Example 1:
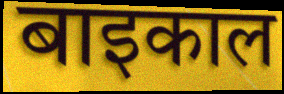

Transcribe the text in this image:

बाइकाल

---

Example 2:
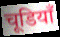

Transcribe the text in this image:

चूडियाँ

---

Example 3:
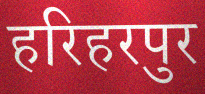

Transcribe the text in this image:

हरिहरपुर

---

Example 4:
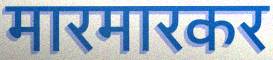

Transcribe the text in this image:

मारमारकर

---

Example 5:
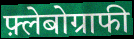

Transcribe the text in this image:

फ़्लेबोग्राफी